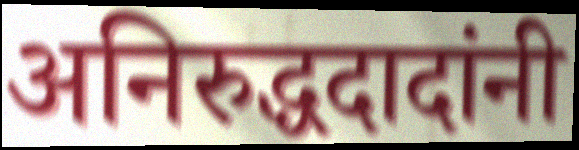
अनिरुद्धदादांनी